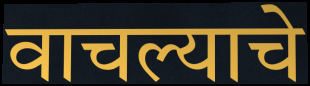
वाचल्याचे